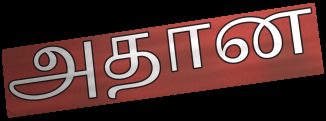
அதான